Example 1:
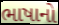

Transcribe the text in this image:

ભાષાનો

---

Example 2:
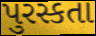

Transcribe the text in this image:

પુરસ્કતા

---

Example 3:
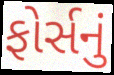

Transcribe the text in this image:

ફોર્સનું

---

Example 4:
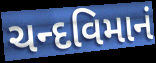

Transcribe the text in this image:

ચન્દવિમાનં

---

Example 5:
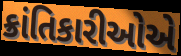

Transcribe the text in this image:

ક્રાંતિકારીઓએ